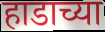
हाडाच्या